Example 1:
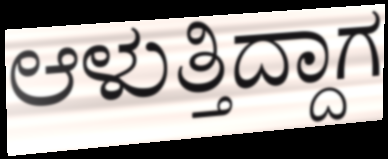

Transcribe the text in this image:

ಆಳುತ್ತಿದ್ದಾಗ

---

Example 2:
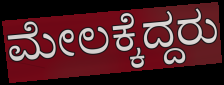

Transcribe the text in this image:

ಮೇಲಕ್ಕೆದ್ದರು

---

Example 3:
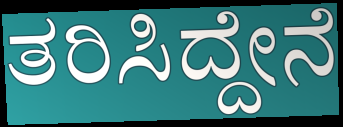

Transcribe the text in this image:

ತರಿಸಿದ್ದೇನೆ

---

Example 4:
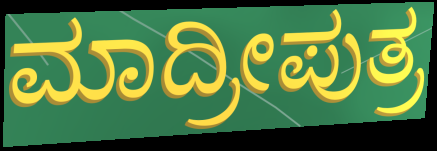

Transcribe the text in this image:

ಮಾದ್ರೀಪುತ್ರ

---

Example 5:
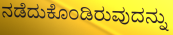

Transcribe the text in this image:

ನಡೆದುಕೊಂಡಿರುವುದನ್ನು